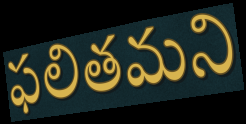
ఫలితమని